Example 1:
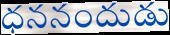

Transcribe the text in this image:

ధననందుడు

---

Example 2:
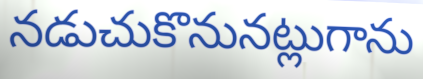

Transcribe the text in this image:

నడుచుకొనునట్లుగాను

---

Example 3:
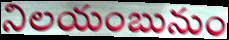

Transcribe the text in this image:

నిలయంబునుం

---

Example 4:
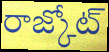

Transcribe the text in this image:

రాజ్కోట్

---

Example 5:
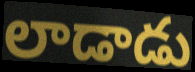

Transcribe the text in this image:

లాడాడు